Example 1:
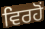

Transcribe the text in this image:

ਵਿਰਹੋਂ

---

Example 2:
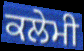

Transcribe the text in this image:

ਕਲੇਮੀ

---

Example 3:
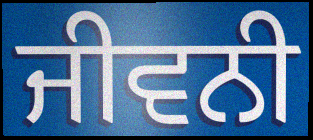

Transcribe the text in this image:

ਜੀਵਨੀ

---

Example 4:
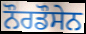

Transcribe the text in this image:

ਨੌਰਡੌਸੇਨ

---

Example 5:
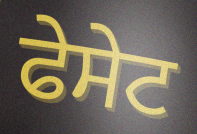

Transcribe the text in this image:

ਫੇਸੇਟ